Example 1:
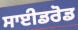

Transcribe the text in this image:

ਸਾਈਡਰੋਡ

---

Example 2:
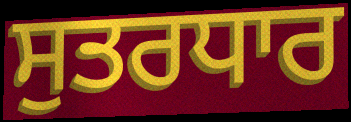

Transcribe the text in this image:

ਸੁਤਰਧਾਰ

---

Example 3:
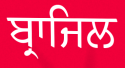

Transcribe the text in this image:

ਬ੍ਰਾਜਿਲ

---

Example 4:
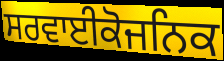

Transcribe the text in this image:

ਸਰਵਾਈਕੋਜਨਿਕ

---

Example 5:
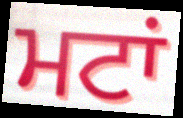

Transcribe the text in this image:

ਮਟਾਂ